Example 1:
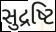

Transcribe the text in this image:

સુદ્રષ્ટિ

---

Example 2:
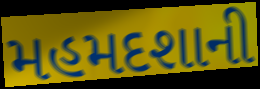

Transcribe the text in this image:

મહમદશાની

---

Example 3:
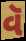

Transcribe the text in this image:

વૅ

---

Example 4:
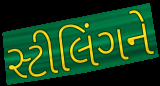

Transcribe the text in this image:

સ્ટીલિંગને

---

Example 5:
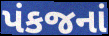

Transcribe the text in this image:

પંકજનાં